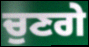
ਚੁਣਗੇ